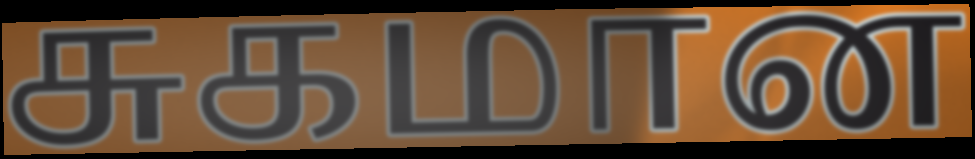
சுகமான